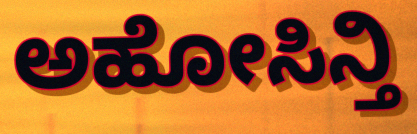
ಅಹೋಸಿನ್ತಿ